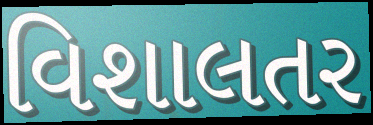
વિશાલતર